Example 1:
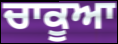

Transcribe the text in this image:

ਚਾਕੂਆ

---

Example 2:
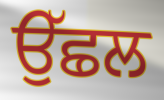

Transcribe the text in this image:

ਉੱਛਲ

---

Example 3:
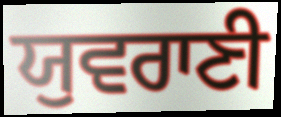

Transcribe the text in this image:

ਯੁਵਰਾਣੀ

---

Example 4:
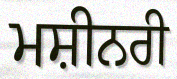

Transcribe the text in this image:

ਮਸ਼ੀਨਰੀ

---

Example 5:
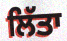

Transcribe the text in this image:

ਲਿੱਤਾ